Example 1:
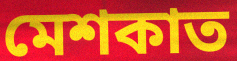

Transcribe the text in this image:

মেশকাত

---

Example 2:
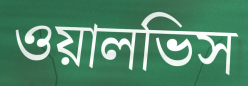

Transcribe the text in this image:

ওয়ালভিস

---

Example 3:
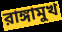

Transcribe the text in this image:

রাঙ্গামুখ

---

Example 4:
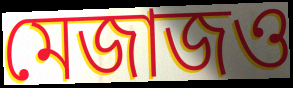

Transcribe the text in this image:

মেজাজও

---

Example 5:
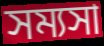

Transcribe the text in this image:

সম্যসা